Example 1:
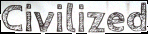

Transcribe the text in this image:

Civilized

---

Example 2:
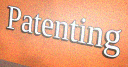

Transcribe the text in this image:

Patenting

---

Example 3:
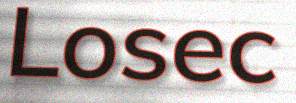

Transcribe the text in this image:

Losec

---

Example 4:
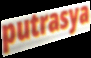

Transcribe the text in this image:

putrasya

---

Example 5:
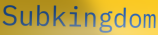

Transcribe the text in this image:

Subkingdom